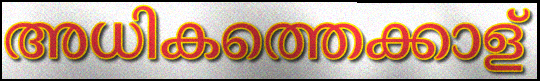
അധികത്തെക്കാള്